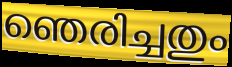
ഞെരിച്ചതും